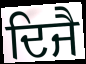
ਦਿਜੈ